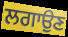
ਲਗਾਉਣ